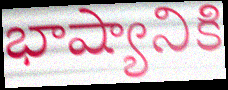
భాష్యానికి